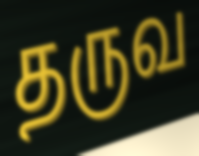
தருவ